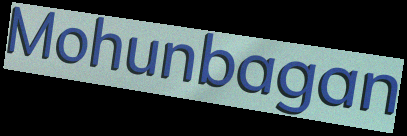
Mohunbagan